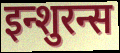
इन्शुरन्स